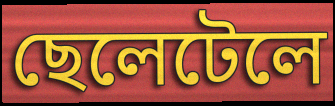
ছেলেটেলে